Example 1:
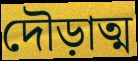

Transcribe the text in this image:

দৌড়াত্ম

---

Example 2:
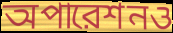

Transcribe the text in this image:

অপারেশনও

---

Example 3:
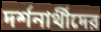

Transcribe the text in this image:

দর্শনার্থীদের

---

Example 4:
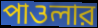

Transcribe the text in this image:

পাওলার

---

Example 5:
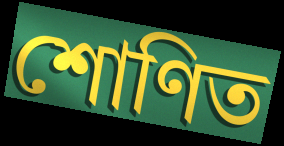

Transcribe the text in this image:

শোণিত